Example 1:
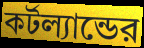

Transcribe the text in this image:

কর্টল্যান্ডের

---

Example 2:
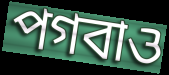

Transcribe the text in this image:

পগবাও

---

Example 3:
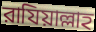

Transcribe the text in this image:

রাযিয়াল্লাহ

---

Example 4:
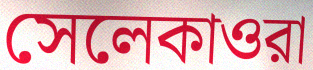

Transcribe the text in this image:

সেলেকাওরা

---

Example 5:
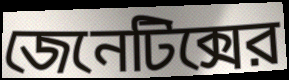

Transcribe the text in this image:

জেনেটিক্সের